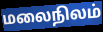
மலைநிலம்